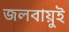
জলবায়ুই